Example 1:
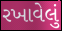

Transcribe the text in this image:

રખાવેલું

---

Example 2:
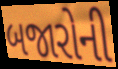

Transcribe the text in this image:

બજારોની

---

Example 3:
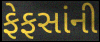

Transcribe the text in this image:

ફેફસાંની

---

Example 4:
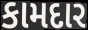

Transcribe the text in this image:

કામદાર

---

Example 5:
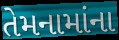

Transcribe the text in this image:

તેમનામાંના